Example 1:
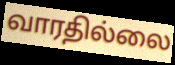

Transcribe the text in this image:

வாரதில்லை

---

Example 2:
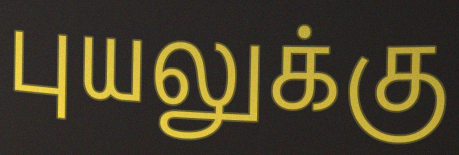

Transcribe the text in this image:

புயலுக்கு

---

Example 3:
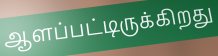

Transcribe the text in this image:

ஆளப்பட்டிருக்கிறது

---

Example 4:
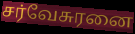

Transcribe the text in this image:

சர்வேசுரனை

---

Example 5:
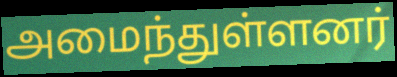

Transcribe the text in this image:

அமைந்துள்ளனர்